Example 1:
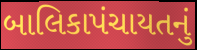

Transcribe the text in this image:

બાલિકાપંચાયતનું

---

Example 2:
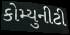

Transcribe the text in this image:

કોમ્યુનીટી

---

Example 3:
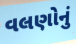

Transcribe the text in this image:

વલણોનું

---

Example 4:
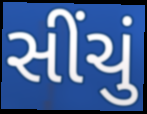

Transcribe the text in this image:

સીંચું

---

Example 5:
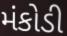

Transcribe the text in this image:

મંકોડી